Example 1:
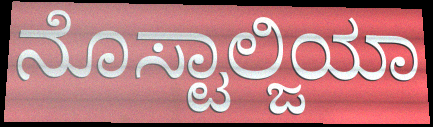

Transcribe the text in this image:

ನೊಸ್ಟಾಲ್ಜಿಯಾ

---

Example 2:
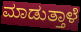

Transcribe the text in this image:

ಮಾಡುತ್ತಾಳೆ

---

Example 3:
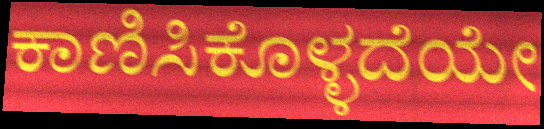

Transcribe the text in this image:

ಕಾಣಿಸಿಕೊಳ್ಳದೆಯೇ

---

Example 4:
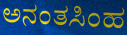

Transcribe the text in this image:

ಅನಂತಸಿಂಹ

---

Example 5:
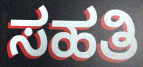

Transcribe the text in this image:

ಸಹತಿ